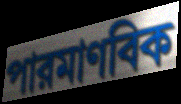
পারমাণবিক